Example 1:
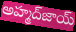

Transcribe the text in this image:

అహ్మద్‌జాయ్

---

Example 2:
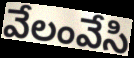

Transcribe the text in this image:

వేలంవేసి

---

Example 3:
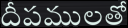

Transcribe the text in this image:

దీపములతో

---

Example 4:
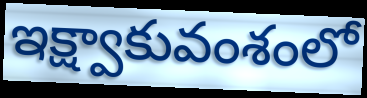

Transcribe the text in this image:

ఇక్ష్వాకువంశంలో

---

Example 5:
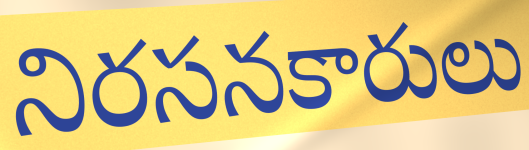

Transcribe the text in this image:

నిరసనకారులు